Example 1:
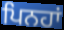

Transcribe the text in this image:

ਪਿਨਹਾਂ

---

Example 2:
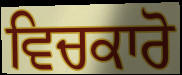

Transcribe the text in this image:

ਵਿਚਕਾਰੋ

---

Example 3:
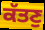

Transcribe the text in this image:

ਕੱਤਣੁ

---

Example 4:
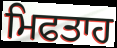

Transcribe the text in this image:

ਮਿਫਤਾਹ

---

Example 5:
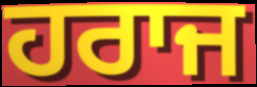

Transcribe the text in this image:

ਹਰਾਜ